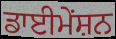
ਡਾਈਮੇਂਸ਼ਨ